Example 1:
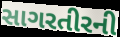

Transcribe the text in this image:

સાગરતીરની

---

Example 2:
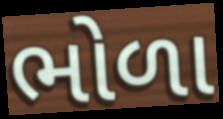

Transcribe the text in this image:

ભોળા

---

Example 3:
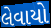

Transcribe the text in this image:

લેવાયો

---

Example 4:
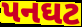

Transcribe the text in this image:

પનઘટ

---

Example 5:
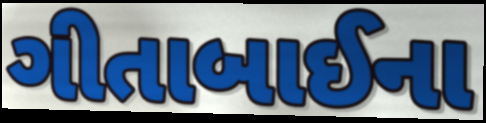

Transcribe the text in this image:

ગીતાબાઈના